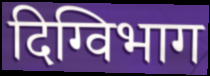
दिग्विभाग